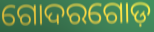
ଗୋଦରଗୋଡ଼